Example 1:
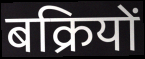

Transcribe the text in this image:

बक्रियों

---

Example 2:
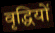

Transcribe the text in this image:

वृद्धियों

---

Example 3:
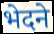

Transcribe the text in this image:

भेदने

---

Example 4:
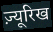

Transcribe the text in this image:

ज़्यूरिख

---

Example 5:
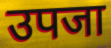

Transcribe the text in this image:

उपजा